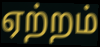
ஏற்றம்